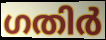
ഗതിർ